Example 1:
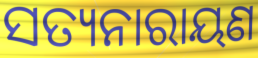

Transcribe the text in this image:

ସତ୍ଯନାରାୟଣ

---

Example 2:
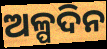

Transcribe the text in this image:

ଅଳ୍ପଦିନ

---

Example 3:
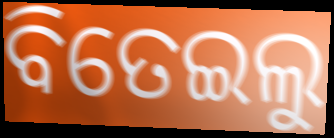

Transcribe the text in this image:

ବିତେଇଲୁ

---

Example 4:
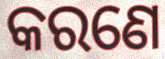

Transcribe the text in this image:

କରଣେ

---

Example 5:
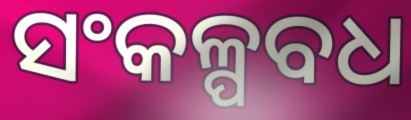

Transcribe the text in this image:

ସଂକଳ୍ପବଧ